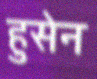
हुसेन